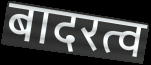
बादरत्व